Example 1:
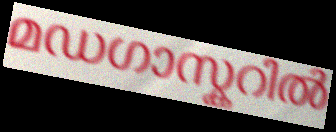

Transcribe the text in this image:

മഡഗാസ്കറിൽ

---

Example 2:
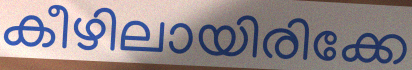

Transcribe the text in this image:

കീഴിലായിരിക്കേ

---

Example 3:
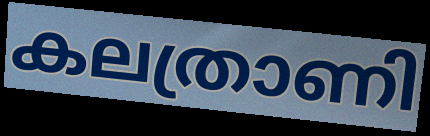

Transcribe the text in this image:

കലത്രാണി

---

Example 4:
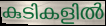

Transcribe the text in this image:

കുടികളിൽ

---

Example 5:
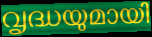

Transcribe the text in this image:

വൃദ്ധയുമായി